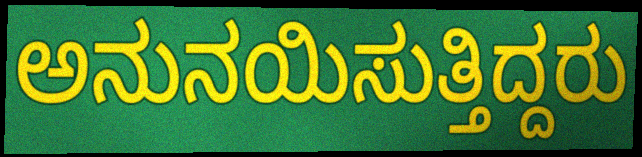
ಅನುನಯಿಸುತ್ತಿದ್ದರು